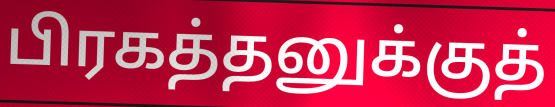
பிரகத்தனுக்குத்